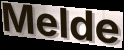
Melde